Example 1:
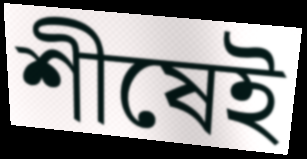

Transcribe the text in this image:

শীষেই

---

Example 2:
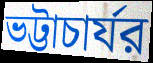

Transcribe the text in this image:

ভট্টাচার্যর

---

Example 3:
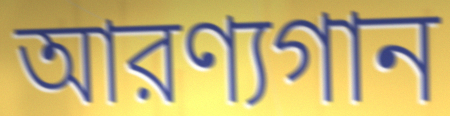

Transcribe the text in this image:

আরণ্যগান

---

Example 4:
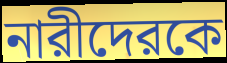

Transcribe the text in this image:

নারীদেরকে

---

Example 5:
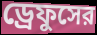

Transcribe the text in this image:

ড্রেফুসের